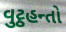
વુટ્ઠહન્તો